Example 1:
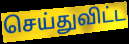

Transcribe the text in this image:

செய்துவிட்ட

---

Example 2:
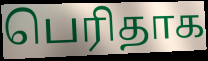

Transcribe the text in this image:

பெரிதாக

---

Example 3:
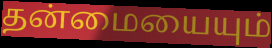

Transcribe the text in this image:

தன்மையையும்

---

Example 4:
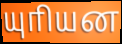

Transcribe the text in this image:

யுரியன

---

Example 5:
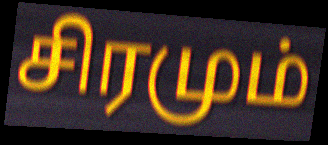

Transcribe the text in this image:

சிரமும்